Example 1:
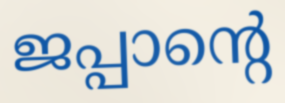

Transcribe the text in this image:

ജപ്പാന്റെ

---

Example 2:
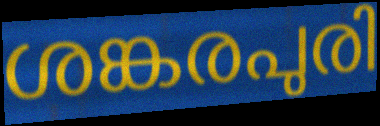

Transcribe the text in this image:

ശങ്കരപുരി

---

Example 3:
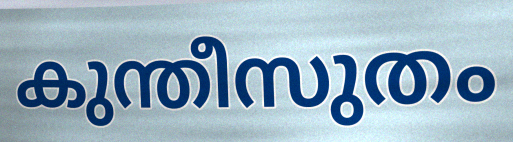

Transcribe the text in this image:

കുന്തീസുതം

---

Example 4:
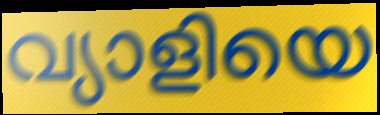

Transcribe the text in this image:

വ്യാളിയെ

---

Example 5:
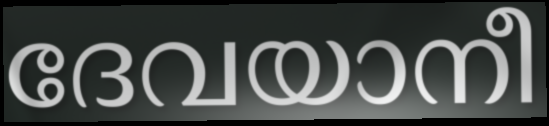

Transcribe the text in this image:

ദേവയാനീ